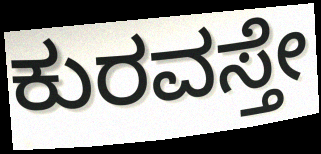
ಕುರವಸ್ತೇ